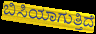
ಬಿಸಿಯಾಗುತ್ತಿದೆ